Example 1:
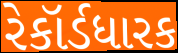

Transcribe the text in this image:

રેકૉર્ડધારક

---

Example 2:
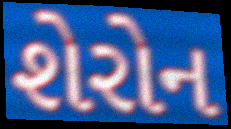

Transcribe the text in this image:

શેરોન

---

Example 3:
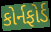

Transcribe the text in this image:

કોર્નફોર્ડ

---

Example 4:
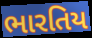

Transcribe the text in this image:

ભારતિય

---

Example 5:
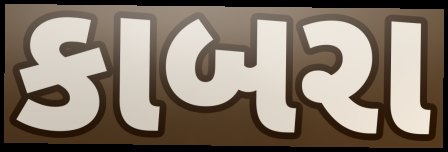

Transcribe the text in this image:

કાબરા